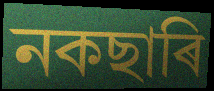
নকছাৰি